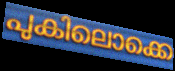
പുകിലൊക്കെ